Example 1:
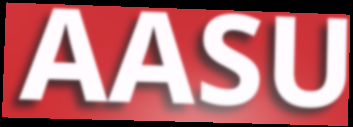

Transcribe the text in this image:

AASU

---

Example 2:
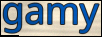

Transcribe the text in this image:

gamy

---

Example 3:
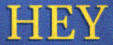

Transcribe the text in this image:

HEY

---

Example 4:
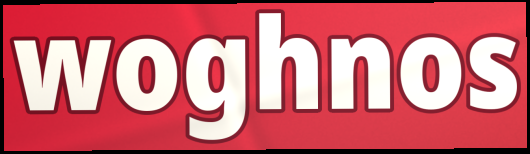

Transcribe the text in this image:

woghnos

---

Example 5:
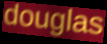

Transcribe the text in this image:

douglas